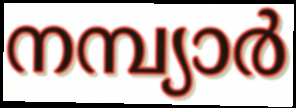
നമ്പ്യാർ